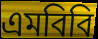
এমবিবি